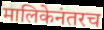
मालिकेनंतरच